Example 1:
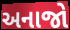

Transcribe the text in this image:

અનાજો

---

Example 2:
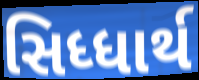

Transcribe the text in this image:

સિધ્ધાર્થ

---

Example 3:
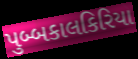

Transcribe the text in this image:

પુબ્બકાલકિરિયા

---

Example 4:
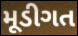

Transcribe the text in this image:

મૂડીગત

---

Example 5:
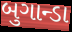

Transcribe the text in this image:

બુગાન્ડા